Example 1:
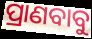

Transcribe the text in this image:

ପ୍ରାଣବାବୁ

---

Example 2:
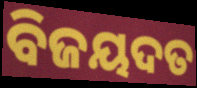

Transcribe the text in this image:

ବିଜୟଦତ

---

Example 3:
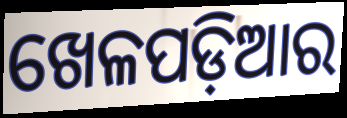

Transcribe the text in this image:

ଖେଳପଡ଼ିଆର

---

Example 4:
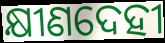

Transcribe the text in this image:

କ୍ଷୀଣଦେହୀ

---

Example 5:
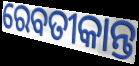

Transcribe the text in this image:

ରେବତୀକାନ୍ତ